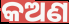
କଅଣ